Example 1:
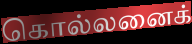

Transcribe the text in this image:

கொல்லனைக்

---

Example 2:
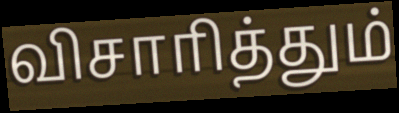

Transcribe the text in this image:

விசாரித்தும்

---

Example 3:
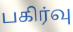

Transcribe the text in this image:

பகிர்வு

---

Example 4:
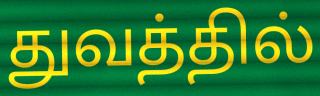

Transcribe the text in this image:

துவத்தில்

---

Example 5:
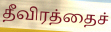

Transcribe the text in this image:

தீவிரத்தைச்